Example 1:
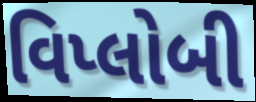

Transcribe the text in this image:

વિપ્લોબી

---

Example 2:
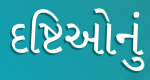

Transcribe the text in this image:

દષ્ટિઓનું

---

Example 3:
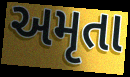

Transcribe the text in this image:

અમૃતા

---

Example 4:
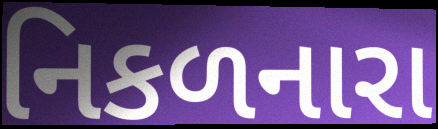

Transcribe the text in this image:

નિકળનારા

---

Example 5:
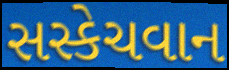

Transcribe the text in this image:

સસ્કેચવાન